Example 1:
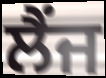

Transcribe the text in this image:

ਲੈਂਜ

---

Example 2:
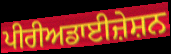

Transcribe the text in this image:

ਪੀਰੀਅਡਾਈਜ਼ੇਸ਼ਨ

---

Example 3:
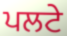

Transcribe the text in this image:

ਪਲਟੇ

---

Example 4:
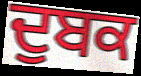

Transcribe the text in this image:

ਦੁਬਕ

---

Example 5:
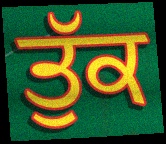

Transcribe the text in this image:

ਤੁੱਕ